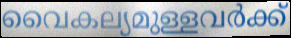
വൈകല്യമുള്ളവർക്ക്